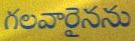
గలవారైనను